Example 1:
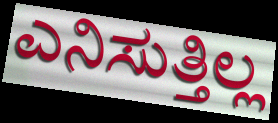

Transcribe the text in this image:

ಎನಿಸುತ್ತಿಲ್ಲ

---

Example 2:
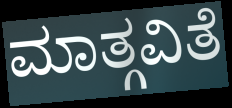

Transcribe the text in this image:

ಮಾತ್ಗವಿತೆ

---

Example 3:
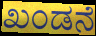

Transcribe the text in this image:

ಖಂಡನೆ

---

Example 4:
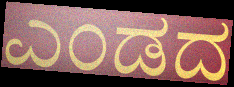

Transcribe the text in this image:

ಎಂಡದ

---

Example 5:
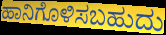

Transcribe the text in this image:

ಹಾನಿಗೊಳಿಸಬಹುದು